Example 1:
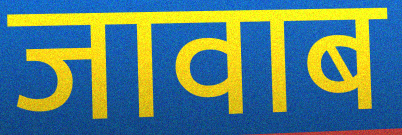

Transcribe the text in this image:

जावाब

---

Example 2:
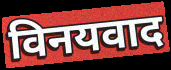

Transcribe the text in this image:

विनयवाद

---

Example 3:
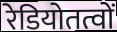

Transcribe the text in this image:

रेडियोतत्वों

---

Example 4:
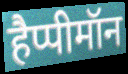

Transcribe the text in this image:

हैप्पीमॉन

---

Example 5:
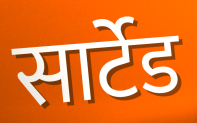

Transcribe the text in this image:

सार्टेड